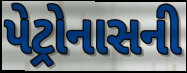
પેટ્રોનાસની